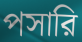
পসারি